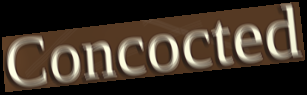
Concocted